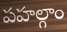
పహల్గాం